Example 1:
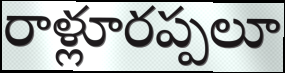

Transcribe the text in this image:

రాళ్లూరప్పలూ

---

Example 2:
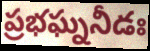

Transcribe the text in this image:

ప్రభఘ్ననీడః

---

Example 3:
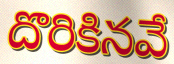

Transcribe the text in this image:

దొరికినవే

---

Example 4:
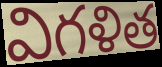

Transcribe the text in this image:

విగళిత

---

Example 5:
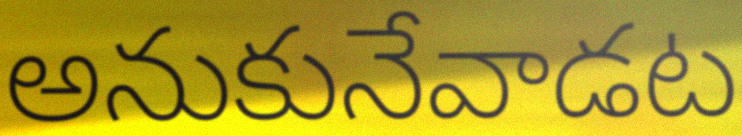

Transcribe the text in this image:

అనుకునేవాడట